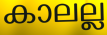
കാലല്ല